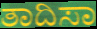
ತಾದಿಸಾ